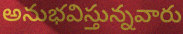
అనుభవిస్తున్నవారు